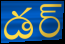
డర్